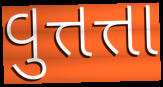
વુત્તત્તા